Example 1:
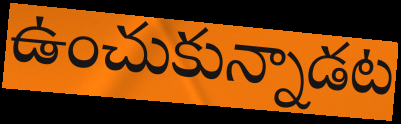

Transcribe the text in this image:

ఉంచుకున్నాడట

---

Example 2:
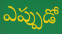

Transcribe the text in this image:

ఎప్పుడో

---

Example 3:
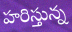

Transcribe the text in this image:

హరిస్తున్న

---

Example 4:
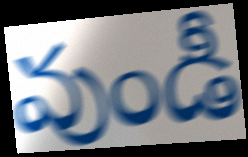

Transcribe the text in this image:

వుండీ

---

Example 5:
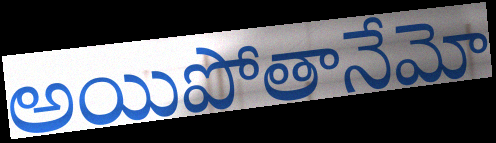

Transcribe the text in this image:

అయిపోతానేమో